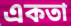
একতা